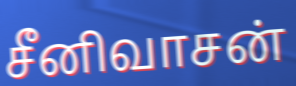
சீனிவாசன்